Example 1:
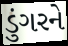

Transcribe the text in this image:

ડુંગરને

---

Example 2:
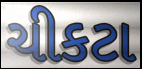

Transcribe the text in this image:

ચીકટા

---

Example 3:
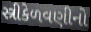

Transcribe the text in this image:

સ્ત્રીકેળવણીનો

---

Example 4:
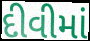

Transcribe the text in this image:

દીવીમાં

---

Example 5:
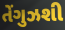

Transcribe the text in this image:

તેંગુઝશી